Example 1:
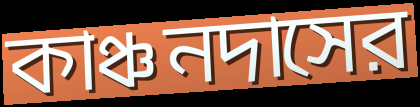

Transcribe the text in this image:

কাঞ্চনদাসের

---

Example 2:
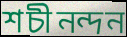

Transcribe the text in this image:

শচীনন্দন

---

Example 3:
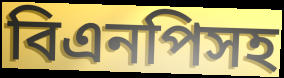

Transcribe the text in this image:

বিএনপিসহ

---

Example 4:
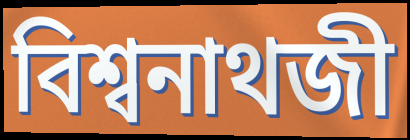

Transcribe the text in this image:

বিশ্বনাথজী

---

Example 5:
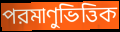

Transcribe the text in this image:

পরমাণুভিত্তিক